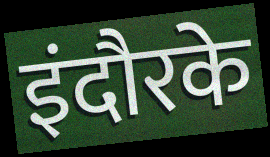
इंदौरके